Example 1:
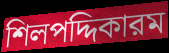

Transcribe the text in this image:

শিলপদ্দিকারম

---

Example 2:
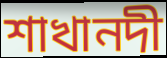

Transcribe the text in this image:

শাখানদী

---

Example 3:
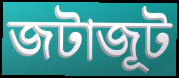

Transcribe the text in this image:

জটাজূট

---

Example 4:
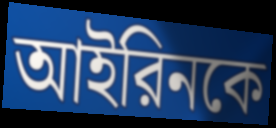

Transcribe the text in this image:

আইরিনকে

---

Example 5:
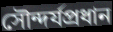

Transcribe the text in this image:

সৌন্দর্যপ্রধান